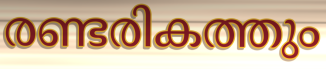
രണ്ടരികത്തും